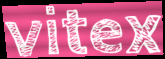
vitex